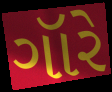
ગૉરે